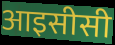
आइसीसी